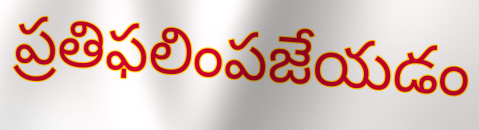
ప్రతిఫలింపజేయడం